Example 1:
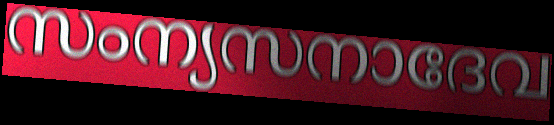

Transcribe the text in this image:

സംന്യസനാദേവ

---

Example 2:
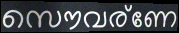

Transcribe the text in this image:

സൌവര്ണേ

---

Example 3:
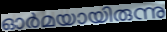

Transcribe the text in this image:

ഓർമയായിരുന്നു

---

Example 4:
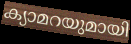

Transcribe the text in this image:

ക്യാമറയുമായി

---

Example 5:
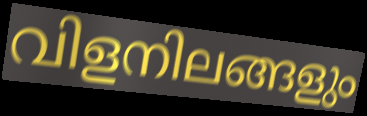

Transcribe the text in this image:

വിളനിലങ്ങളും